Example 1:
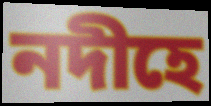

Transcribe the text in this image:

নদীহে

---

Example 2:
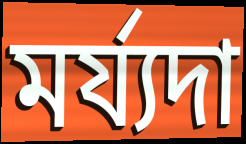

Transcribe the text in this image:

মৰ্য্যদা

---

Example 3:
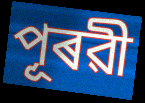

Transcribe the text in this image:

পূৰৱী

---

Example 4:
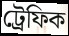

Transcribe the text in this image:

ট্ৰেফিক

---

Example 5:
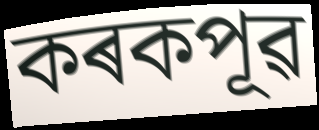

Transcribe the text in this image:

কৰকপূৱ